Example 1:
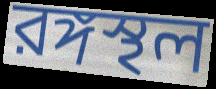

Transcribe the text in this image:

রঙ্গস্থল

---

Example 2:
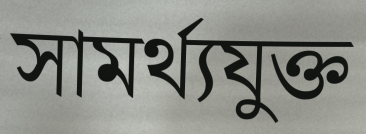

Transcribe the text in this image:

সামর্থ্যযুক্ত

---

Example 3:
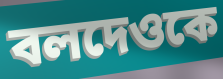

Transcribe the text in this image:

বলদেওকে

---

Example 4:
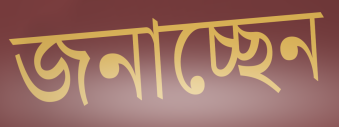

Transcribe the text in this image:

জনাচ্ছেন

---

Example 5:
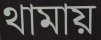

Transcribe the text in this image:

থামায়